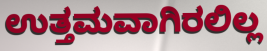
ಉತ್ತಮವಾಗಿರಲಿಲ್ಲ